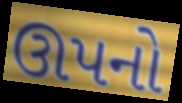
ઊપનો